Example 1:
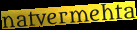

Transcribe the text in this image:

natvermehta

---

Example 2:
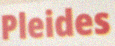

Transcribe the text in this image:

Pleides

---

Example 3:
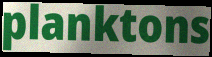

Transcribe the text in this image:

planktons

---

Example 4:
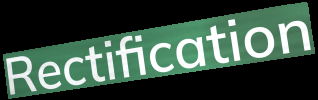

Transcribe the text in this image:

Rectification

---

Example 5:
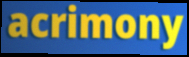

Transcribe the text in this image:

acrimony